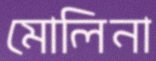
মোলিনা